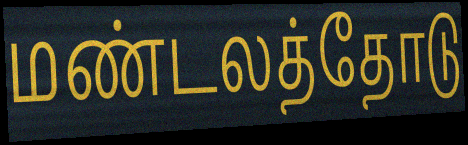
மண்டலத்தோடு